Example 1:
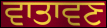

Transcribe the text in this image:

ਵਾਤਾਵਣ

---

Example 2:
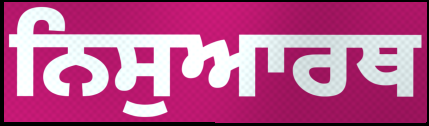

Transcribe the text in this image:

ਨਿਸੁਆਰਥ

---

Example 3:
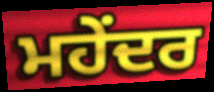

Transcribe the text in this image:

ਮਹੇਂਦਰ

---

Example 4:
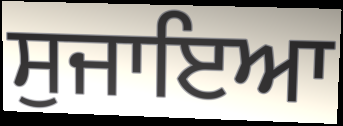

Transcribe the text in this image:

ਸੁਜਾਇਆ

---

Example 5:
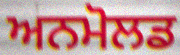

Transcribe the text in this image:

ਅਨਮੋਲਡ